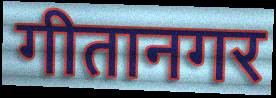
गीतानगर